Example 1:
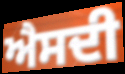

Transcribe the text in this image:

ਐਸਦੀ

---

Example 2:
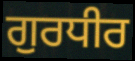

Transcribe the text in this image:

ਗੁਰਧੀਰ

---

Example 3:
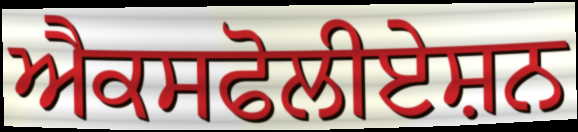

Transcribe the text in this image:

ਐਕਸਫੋਲੀਏਸ਼ਨ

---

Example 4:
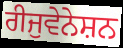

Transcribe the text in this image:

ਰੀਜੁਵੇਨੇਸ਼ਨ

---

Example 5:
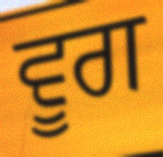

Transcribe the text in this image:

ਵੂਗ